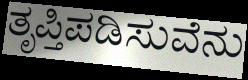
ತೃಪ್ತಿಪಡಿಸುವೆನು